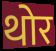
थोर